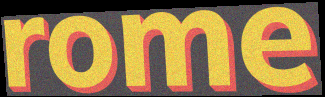
rome